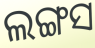
ଲଙ୍ଗସ